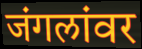
जंगलांवर